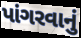
પાંગરવાનું